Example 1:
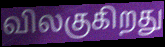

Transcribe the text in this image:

விலகுகிறது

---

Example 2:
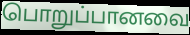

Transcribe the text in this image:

பொறுப்பானவை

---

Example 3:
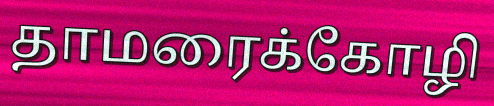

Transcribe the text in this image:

தாமரைக்கோழி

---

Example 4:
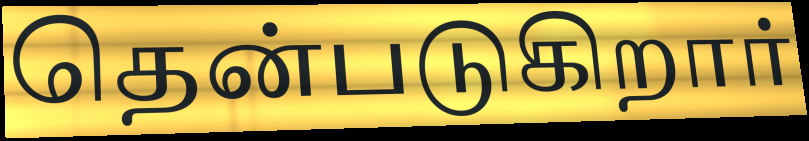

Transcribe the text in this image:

தென்படுகிறார்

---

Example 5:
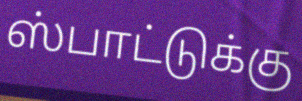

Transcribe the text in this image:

ஸ்பாட்டுக்கு